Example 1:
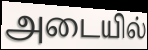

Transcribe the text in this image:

அடையில்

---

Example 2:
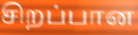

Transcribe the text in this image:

சிறப்பான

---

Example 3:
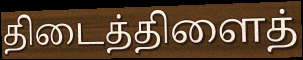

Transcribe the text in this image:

திடைத்திளைத்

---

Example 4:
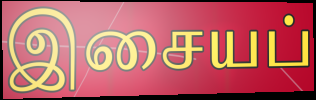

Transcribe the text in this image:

இசையப்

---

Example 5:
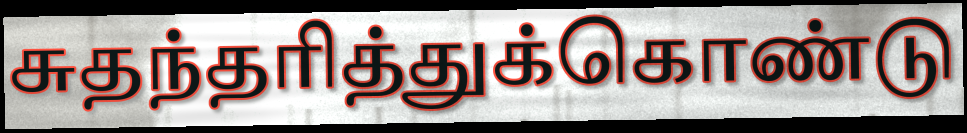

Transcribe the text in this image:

சுதந்தரித்துக்கொண்டு